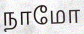
நாமோ